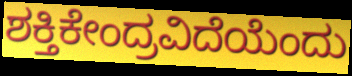
ಶಕ್ತಿಕೇಂದ್ರವಿದೆಯೆಂದು